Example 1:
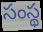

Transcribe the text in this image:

సంస్థ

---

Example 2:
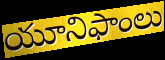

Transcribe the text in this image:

యూనిఫాంలు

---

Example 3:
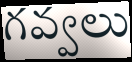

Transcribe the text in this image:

గవ్వలు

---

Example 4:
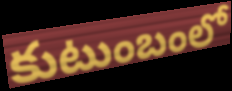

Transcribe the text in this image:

కుటుంబంలో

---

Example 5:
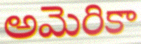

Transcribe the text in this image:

అమెరికా